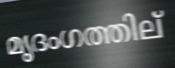
മൃദംഗത്തില്